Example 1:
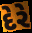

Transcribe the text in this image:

દેરે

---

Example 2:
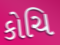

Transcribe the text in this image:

કોચિ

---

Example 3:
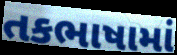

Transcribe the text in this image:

તકભાષામાં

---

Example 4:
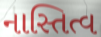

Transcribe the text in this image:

નાસ્તિત્વ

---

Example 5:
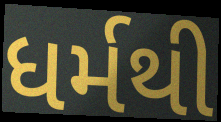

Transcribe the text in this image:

ધર્મથી